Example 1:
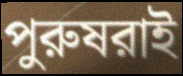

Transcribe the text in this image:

পুরুষরাই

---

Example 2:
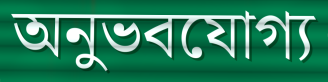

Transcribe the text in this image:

অনুভবযোগ্য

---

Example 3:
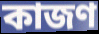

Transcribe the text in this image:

কাজণ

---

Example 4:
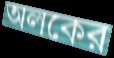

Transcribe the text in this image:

অলকের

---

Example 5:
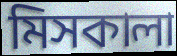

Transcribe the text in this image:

মিসকালা